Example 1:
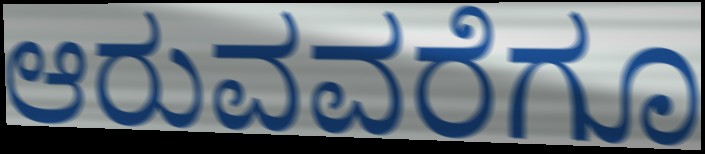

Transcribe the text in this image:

ಆರುವವರೆಗೂ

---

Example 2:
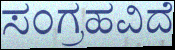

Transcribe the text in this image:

ಸಂಗ್ರಹವಿದೆ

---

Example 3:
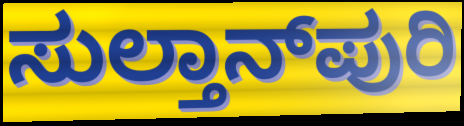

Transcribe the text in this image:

ಸುಲ್ತಾನ್‌ಪುರಿ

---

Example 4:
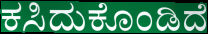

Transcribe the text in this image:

ಕಸಿದುಕೊಂಡಿದೆ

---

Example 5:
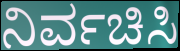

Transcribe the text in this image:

ನಿರ್ವಚಿಸಿ